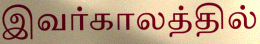
இவர்காலத்தில்